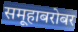
समूहाबरोबर